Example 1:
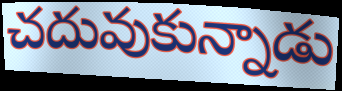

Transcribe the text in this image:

చదువుకున్నాడు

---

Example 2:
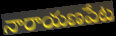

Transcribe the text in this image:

నారాయణపేట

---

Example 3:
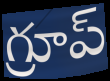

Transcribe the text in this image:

గ్రూప్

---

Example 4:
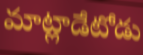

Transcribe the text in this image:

మాట్లాడేటోడు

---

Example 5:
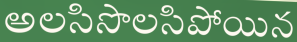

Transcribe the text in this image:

అలసిసొలసిపోయిన